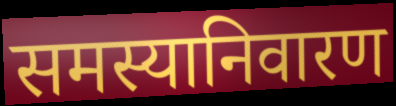
समस्यानिवारण